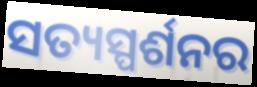
ସତ୍ୟସ୍ପର୍ଶନର